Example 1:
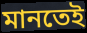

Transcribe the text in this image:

মানতেই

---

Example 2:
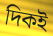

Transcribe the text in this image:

দিকই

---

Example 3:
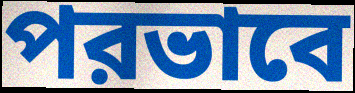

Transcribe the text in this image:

পরভাবে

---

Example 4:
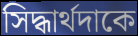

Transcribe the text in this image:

সিদ্ধার্থদাকে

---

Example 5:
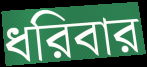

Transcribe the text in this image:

ধরিবার